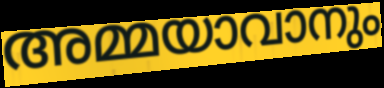
അമ്മയാവാനും